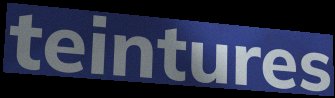
teintures